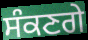
ਸੰਕਣਗੇ